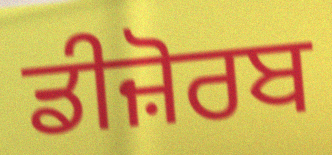
ਡੀਜ਼ੋਰਬ